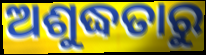
ଅଶୁଦ୍ଧତାରୁ